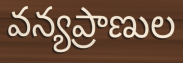
వన్యప్రాణుల